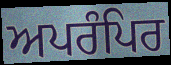
ਅਪਰੰਪਿਰ